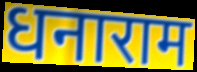
धनाराम